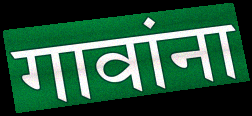
गावांना